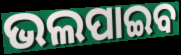
ଭଲପାଇବ